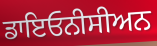
ਡਾਇਓਨੀਸੀਅਨ